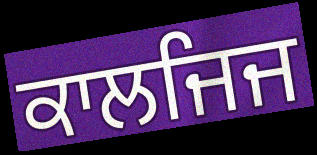
ਕਾਲਜਿਜ